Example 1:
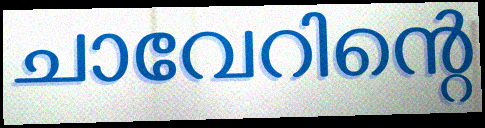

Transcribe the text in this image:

ചാവേറിന്റെ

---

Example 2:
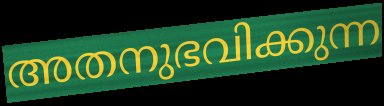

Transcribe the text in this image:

അതനുഭവിക്കുന്ന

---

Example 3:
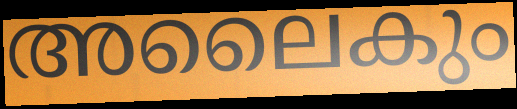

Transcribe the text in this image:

അലൈകും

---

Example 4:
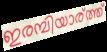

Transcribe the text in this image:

ഇരമ്പിയാര്ത്ത്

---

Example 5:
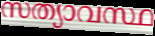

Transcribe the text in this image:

സത്യാവസ്ഥ